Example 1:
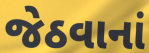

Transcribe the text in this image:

જેઠવાનાં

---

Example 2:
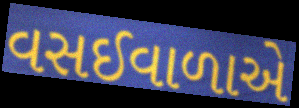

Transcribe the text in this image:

વસઈવાળાએ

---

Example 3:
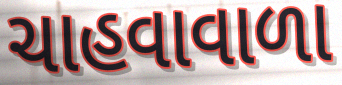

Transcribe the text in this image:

ચાહવાવાળા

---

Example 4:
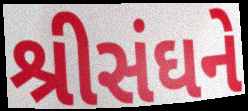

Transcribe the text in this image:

શ્રીસંઘને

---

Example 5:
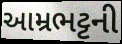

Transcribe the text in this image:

આમ્રભટ્ટની